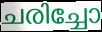
ചരിച്ചോ